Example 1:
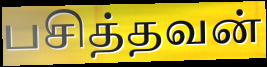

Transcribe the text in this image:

பசித்தவன்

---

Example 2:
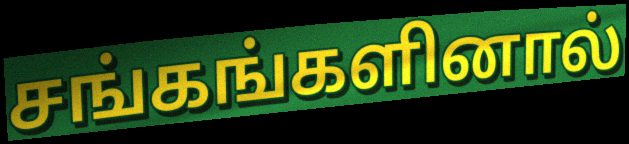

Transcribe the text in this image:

சங்கங்களினால்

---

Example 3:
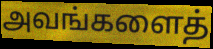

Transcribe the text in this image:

அவங்களைத்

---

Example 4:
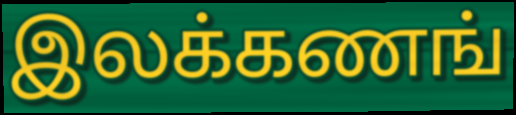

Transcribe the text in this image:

இலக்கணங்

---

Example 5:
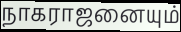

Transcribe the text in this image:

நாகராஜனையும்